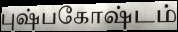
புஷ்பகோஷ்டம்